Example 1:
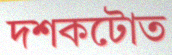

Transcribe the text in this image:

দশকটোত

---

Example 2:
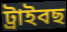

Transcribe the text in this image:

ট্ৰাইবছ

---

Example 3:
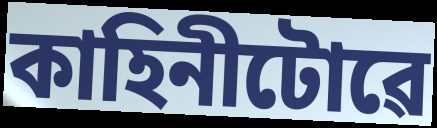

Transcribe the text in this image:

কাহিনীটোৱে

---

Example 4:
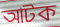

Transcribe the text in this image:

আটক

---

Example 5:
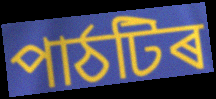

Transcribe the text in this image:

পাঠটিৰ